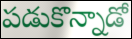
పడుకొన్నాడో